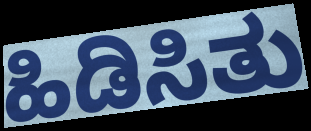
ಹಿಡಿಸಿತು